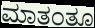
ಮಾತಂತೂ